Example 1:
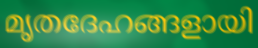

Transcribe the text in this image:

മൃതദേഹങ്ങളായി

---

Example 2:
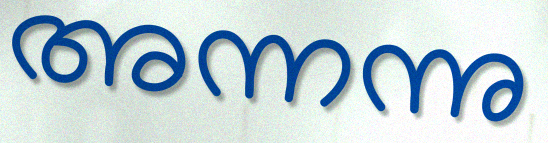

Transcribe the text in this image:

അന്നന്നു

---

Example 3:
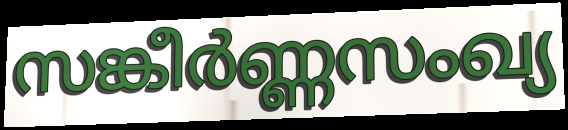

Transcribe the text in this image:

സങ്കീർണ്ണസംഖ്യ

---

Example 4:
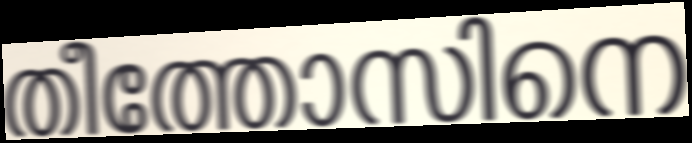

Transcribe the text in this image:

തീത്തോസിനെ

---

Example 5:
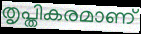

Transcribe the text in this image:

തൃപ്തികരമാണ്